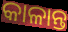
କାଳାନ୍ତ